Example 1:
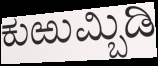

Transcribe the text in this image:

ಕುಱುಮ್ಬಿಡಿ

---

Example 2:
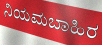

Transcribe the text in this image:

ನಿಯಮಬಾಹಿರ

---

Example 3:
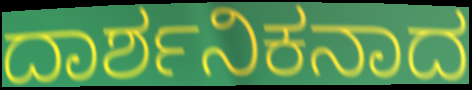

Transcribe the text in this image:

ದಾರ್ಶನಿಕನಾದ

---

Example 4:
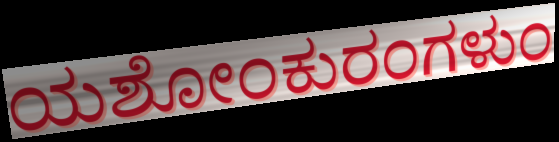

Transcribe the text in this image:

ಯಶೋಂಕುರಂಗಳುಂ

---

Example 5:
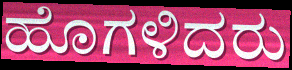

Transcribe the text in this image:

ಹೊಗಳಿದರು